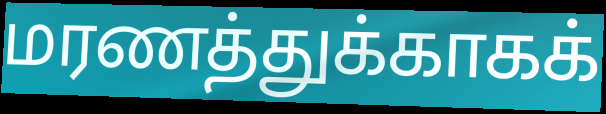
மரணத்துக்காகக்